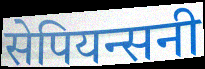
सेपियन्सनी